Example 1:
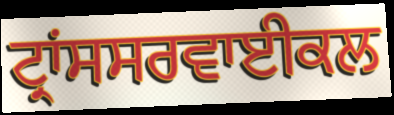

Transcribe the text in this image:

ਟ੍ਰਾਂਸਸਰਵਾਈਕਲ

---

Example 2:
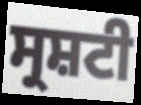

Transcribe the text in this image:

ਸ੍ਰਸ਼ਟੀ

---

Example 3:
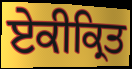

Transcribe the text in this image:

ਏਕੀਕ੍ਰਿਤ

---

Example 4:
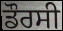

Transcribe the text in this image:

ਡੌਰਸੀ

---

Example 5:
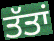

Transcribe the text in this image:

ਤੱਤਾਂ